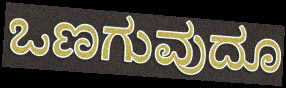
ಒಣಗುವುದೂ